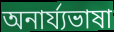
অনার্য্যভাষা